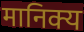
मानिक्य